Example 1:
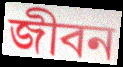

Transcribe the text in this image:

জীবন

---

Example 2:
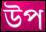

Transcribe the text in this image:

উপ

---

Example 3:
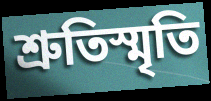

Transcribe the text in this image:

শ্রুতিস্মৃতি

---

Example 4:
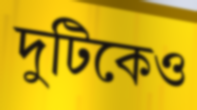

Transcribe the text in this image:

দুটিকেও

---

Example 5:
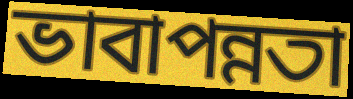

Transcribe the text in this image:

ভাবাপন্নতা